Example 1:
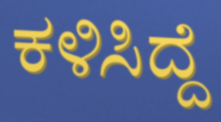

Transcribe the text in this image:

ಕಳಿಸಿದ್ದೆ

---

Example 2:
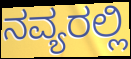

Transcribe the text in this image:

ನವ್ಯರಲ್ಲಿ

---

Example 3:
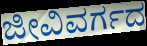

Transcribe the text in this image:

ಜೀವಿವರ್ಗದ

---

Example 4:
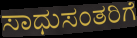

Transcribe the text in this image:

ಸಾಧುಸಂತರಿಗೆ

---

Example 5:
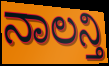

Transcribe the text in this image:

ನಾಲನ್ತಿ